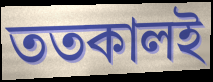
ততকালই